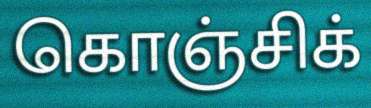
கொஞ்சிக்